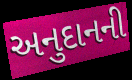
અનુદાનની